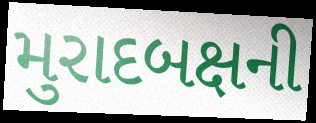
મુરાદબક્ષની